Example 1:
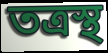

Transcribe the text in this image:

তত্রস্থ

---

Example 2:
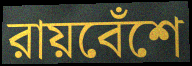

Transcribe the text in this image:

রায়বেঁশে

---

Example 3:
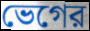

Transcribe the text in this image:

ভেগের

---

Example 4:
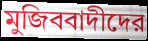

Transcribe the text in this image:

মুজিববাদীদের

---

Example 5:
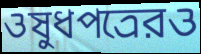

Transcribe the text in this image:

ওষুধপত্রেরও